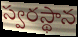
స్వరస్థాన